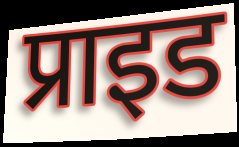
प्राइड